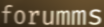
forumms